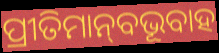
ପ୍ରୀତିମାନ୍‌ବଭୂବାହ